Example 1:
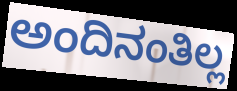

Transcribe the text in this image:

ಅಂದಿನಂತಿಲ್ಲ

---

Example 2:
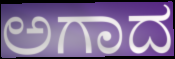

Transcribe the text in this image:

ಅಗಾದ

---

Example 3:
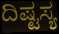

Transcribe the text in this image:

ದಿಷ್ಟಸ್ಯ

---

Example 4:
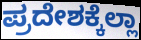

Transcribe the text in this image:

ಪ್ರದೇಶಕ್ಕೆಲ್ಲಾ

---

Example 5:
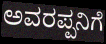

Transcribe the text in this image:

ಅವರಪ್ಪನಿಗೆ